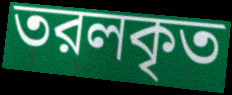
তরলকৃত